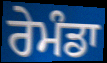
ਰੇਮੰਡਾ